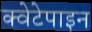
क्वेटेपाइन